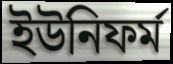
ইউনিফর্ম